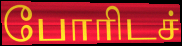
போரிடச்